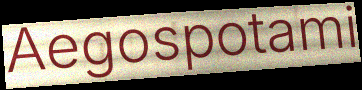
Aegospotami